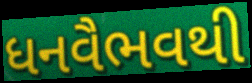
ધનવૈભવથી